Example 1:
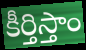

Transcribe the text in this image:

కీర్తిస్తాం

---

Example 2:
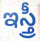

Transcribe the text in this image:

ఇస్త్రీ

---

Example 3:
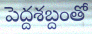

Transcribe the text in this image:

పెద్దశబ్దంతో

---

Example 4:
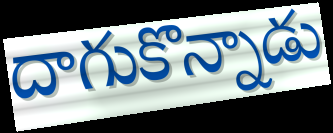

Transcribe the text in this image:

దాగుకొన్నాడు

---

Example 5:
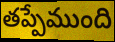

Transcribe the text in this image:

తప్పేముంది